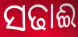
ସଢାଈ